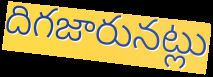
దిగజారునట్లు